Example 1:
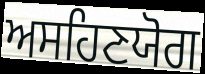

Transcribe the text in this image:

ਅਸਹਿਣਯੋਗ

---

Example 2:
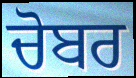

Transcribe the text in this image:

ਚੋਬਰ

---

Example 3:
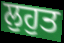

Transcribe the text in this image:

ਲੁਹੁਤ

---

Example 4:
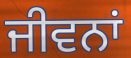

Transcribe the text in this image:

ਜੀਵਨਾਂ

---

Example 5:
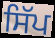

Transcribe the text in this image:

ਸਿੱਪ